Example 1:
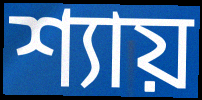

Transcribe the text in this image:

শ্যায়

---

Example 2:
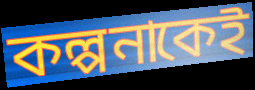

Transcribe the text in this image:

কল্পনাকেই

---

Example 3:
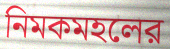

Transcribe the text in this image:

নিমকমহলের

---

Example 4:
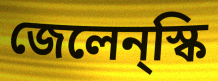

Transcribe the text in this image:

জেলেন্স্কি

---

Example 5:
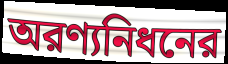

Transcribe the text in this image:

অরণ্যনিধনের